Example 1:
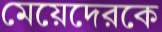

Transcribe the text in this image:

মেয়েদেরকে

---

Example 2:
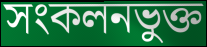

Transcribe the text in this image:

সংকলনভুক্ত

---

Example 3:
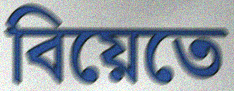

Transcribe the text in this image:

বিয়েতে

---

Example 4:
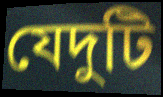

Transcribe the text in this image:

যেদুটি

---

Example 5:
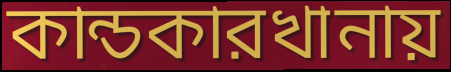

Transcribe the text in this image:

কান্ডকারখানায়